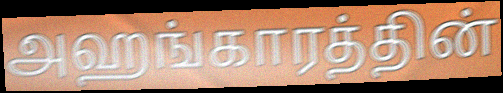
அஹங்காரத்தின்